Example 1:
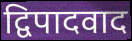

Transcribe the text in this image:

द्विपादवाद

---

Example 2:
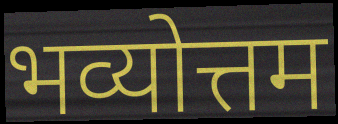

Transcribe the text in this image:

भव्योत्तम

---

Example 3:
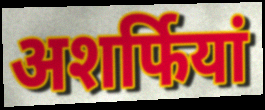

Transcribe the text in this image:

अशर्फियां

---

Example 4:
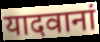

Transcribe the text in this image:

यादवानां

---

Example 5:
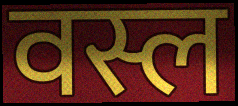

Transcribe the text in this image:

वस्ल